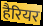
हैरियर